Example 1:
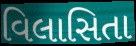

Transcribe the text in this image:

વિલાસિતા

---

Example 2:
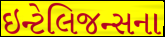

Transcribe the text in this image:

ઇન્ટેલિજન્સના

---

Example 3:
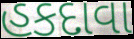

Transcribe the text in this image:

હકદાવા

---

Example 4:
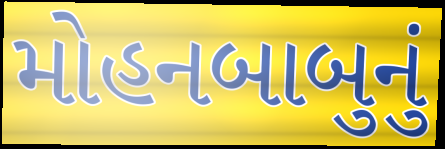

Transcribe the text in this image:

મોહનબાબુનું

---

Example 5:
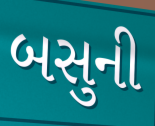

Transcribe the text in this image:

બસુની